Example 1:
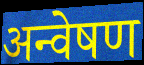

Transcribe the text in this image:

अन्वेषण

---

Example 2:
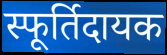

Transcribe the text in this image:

स्फूर्तिदायक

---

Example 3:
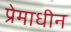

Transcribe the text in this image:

प्रेमाधीन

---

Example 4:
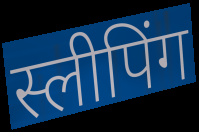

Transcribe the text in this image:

स्लीपिंग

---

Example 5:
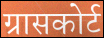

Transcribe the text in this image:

ग्रासकोर्ट